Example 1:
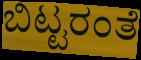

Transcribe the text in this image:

ಬಿಟ್ಟರಂತೆ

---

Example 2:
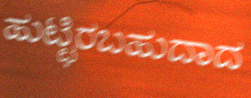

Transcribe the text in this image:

ಹುಟ್ಟಿರಬಹುದಾದ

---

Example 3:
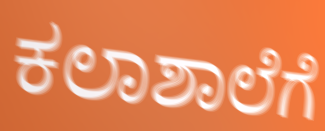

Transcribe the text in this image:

ಕಲಾಶಾಲೆಗೆ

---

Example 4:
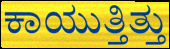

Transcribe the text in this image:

ಕಾಯುತ್ತಿತ್ತು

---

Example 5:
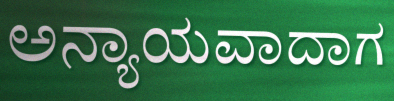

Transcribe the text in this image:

ಅನ್ಯಾಯವಾದಾಗ